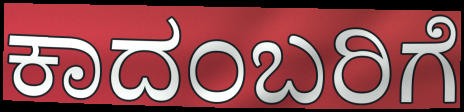
ಕಾದಂಬರಿಗೆ